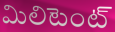
మిలిటెంట్